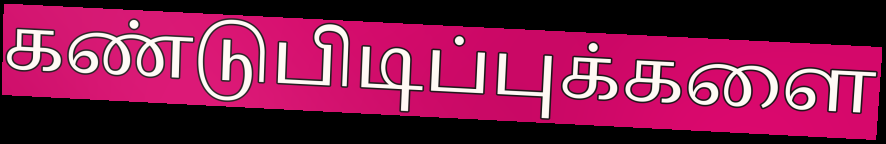
கண்டுபிடிப்புக்களை